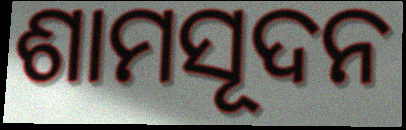
ଶାମସୂଦନ